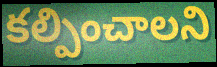
కల్పించాలని